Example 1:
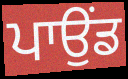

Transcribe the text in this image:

ਪਾਉਂਡ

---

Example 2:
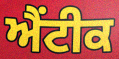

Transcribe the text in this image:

ਐਂਟੀਕ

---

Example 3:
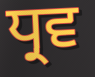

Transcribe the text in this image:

ਧ੍ਰਵ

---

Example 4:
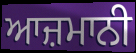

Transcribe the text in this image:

ਆਜ਼ਮਾਨੀ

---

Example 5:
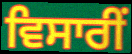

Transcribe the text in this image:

ਵਿਸਾਰੀਂ